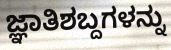
ಜ್ಞಾತಿಶಬ್ದಗಳನ್ನು